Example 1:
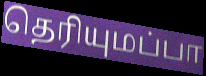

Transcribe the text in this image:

தெரியுமப்பா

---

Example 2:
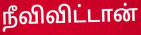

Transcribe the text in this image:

நீவிவிட்டான்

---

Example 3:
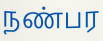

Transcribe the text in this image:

நண்பர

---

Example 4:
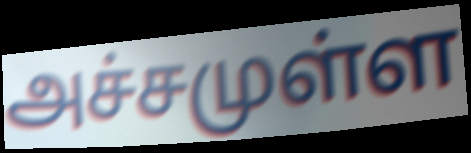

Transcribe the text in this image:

அச்சமுள்ள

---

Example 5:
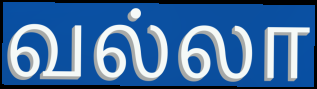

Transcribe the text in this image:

வல்லா